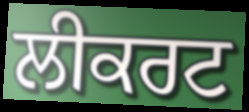
ਲੀਕਰਟ